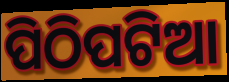
ପିଠିପଟିଆ